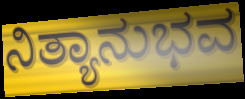
ನಿತ್ಯಾನುಭವ